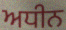
ਅਧੀਨ